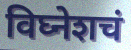
विघ्नेशचं